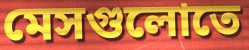
মেসগুলোতে